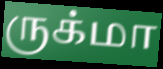
ருக்மா